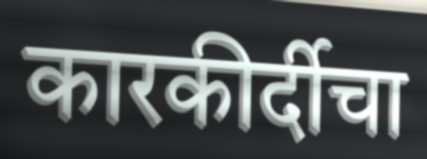
कारकीर्दीचा